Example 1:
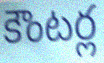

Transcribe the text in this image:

కౌంటర్ల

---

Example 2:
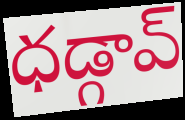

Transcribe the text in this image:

ధడ్గావ్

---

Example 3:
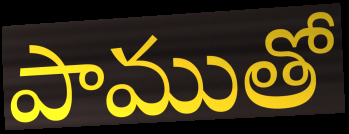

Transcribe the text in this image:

పాముతో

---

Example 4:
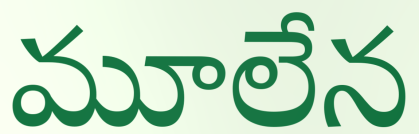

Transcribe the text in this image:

మూలేన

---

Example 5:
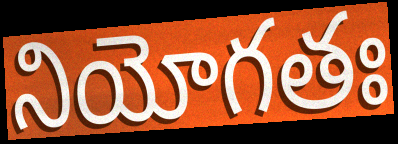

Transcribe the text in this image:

నియోగతః